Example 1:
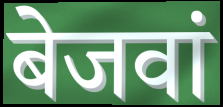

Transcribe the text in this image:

बेजवां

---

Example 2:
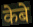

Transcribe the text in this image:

केबे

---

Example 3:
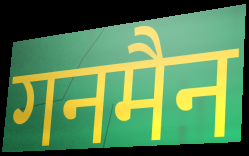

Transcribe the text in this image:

गनमैन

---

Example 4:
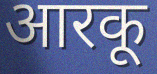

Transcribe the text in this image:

आरकू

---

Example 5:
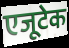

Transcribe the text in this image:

एजूटेक